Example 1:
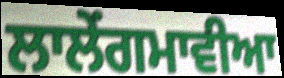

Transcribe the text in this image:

ਲਾਲੇਂਗਮਾਵੀਆ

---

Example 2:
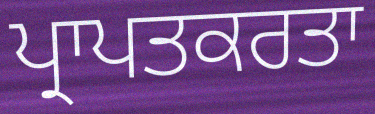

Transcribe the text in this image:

ਪ੍ਰਾਪਤਕਰਤਾ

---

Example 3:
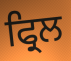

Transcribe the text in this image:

ਫ੍ਰਿਲ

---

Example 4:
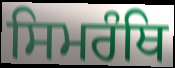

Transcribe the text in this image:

ਸਿਮਰੰਥਿ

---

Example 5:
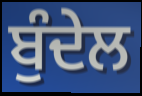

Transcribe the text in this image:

ਬੁੰਦੇਲ